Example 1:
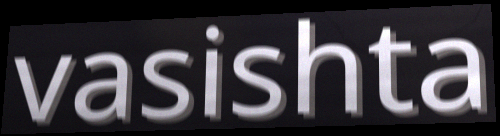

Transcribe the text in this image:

vasishta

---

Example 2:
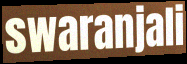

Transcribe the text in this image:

swaranjali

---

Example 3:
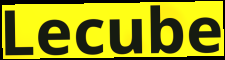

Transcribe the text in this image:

Lecube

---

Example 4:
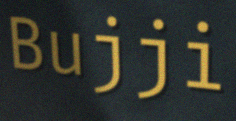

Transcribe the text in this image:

Bujji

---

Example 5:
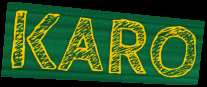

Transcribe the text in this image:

KARO